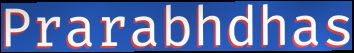
Prarabhdhas